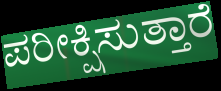
ಪರೀಕ್ಷಿಸುತ್ತಾರೆ